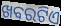
ଖବରଟିଏ